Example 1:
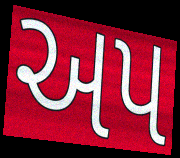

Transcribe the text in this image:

અપ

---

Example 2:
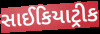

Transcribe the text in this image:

સાઈકિયાટ્રીક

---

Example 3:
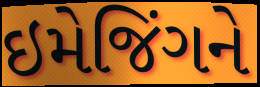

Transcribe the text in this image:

ઇમેજિંગને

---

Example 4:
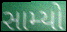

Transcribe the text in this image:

સામ્યો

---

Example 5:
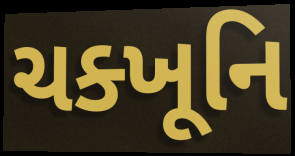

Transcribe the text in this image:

ચક્ખૂનિ